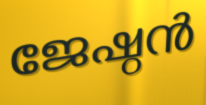
ജേഷ്ഠൻ